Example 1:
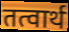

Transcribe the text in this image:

तत्वार्थ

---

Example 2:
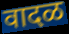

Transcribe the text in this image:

वादळ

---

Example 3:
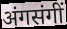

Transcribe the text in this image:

अंगसंगीं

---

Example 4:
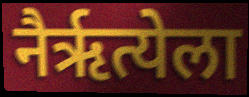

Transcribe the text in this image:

नैर्ऋत्येला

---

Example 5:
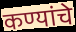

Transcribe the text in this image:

कण्यांचे